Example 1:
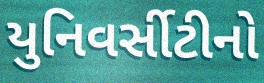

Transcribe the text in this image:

યુનિવર્સીટીનો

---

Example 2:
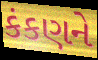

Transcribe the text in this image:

કંકણને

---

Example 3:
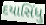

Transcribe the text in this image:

દયાસિંધુ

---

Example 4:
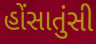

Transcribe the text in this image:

હોંસાતુંસી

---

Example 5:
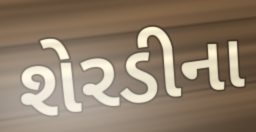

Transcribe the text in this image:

શેરડીના